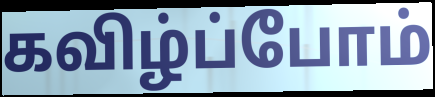
கவிழ்ப்போம்